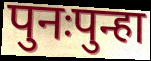
पुनःपुन्हा